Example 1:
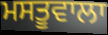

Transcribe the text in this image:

ਮਸਤੂਵਾਲਾ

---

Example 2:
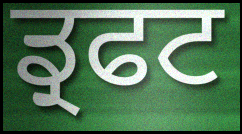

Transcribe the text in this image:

ਡ੍ਰਫਟ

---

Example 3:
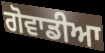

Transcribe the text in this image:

ਗੋਵਾਡੀਆ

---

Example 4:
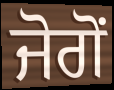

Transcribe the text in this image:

ਜੋਗੋਂ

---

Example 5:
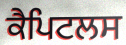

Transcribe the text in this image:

ਕੈਪਿਟਲਸ